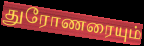
துரோணரையும்